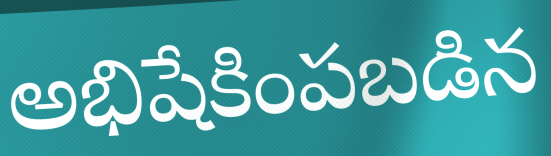
అభిషేకింపబడిన